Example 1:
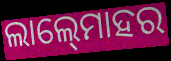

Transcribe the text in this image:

ଲାଲ୍‍ମୋହର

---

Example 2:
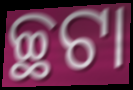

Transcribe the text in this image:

ଚ୍ଛଟା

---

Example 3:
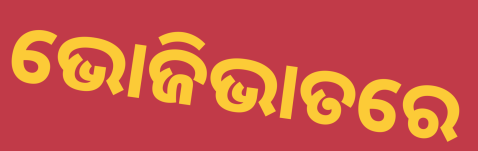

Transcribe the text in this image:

ଭୋଜିଭାତରେ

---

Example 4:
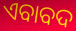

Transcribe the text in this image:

ଏବାବଦ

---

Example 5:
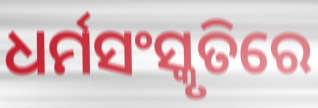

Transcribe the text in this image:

ଧର୍ମସଂସ୍କୃତିରେ